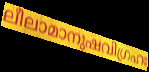
ലീലാമാനുഷവിഗ്രഹഃ